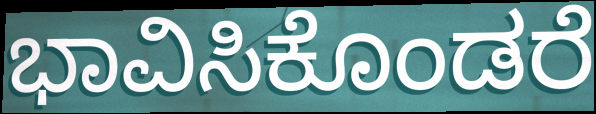
ಭಾವಿಸಿಕೊಂಡರೆ